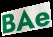
BAe